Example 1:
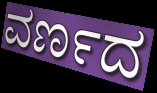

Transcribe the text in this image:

ವರ್ಣದ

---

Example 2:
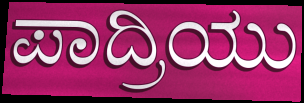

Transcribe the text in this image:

ಪಾದ್ರಿಯು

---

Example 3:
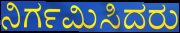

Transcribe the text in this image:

ನಿರ್ಗಮಿಸಿದರು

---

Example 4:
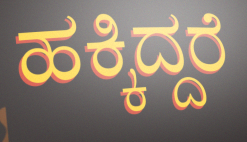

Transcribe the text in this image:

ಹಕ್ಕಿದ್ದರೆ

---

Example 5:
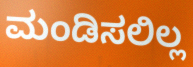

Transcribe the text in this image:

ಮಂಡಿಸಲಿಲ್ಲ